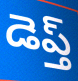
డెప్త్